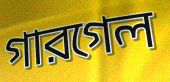
গারগেল